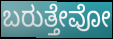
ಬರುತ್ತೇವೋ